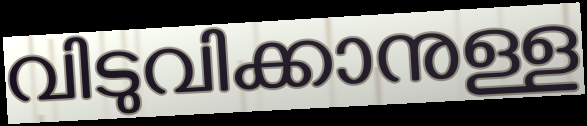
വിടുവിക്കാനുള്ള